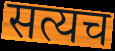
सत्यच